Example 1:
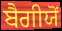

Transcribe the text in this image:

ਬੈਗੀਯੋਂ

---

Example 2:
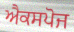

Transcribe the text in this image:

ਐਕਸਪੋਜ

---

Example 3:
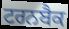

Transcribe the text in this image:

ਟਰਨਬੈਕ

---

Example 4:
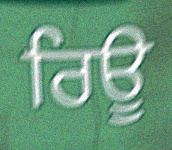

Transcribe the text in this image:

ਰਿਊ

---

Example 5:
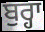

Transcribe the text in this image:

ਬੁਰ੍ਹਾ